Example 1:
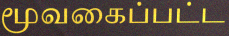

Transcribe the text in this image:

மூவகைப்பட்ட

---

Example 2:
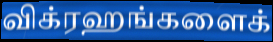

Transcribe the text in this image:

விக்ரஹங்களைக்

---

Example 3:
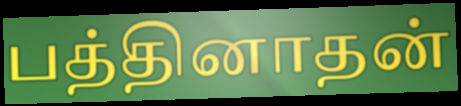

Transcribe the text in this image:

பத்தினாதன்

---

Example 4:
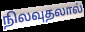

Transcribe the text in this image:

நிலவுதலால்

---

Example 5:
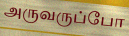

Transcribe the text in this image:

அருவருப்போ